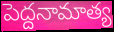
పెద్దనామాత్య